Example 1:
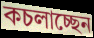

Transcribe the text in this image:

কচলাচ্ছেন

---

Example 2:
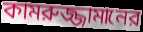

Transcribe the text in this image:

কামরুজ্জামানের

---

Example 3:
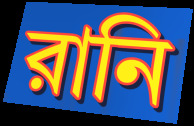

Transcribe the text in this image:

রানি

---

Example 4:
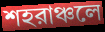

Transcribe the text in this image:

শহরাঞ্চলে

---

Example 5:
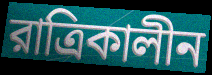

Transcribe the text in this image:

রাত্রিকালীন